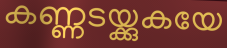
കണ്ണടയ്ക്കുകയേ